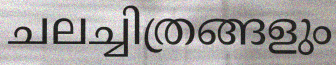
ചലച്ചിത്രങ്ങളും